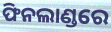
ଫିନଲାଣ୍ଡରେ